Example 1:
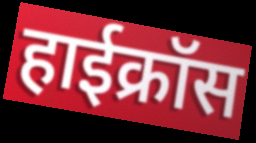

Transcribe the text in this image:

हाईक्रॉस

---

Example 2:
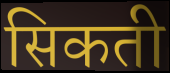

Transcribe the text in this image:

सिकती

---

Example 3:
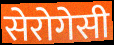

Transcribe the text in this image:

सेरोगेसी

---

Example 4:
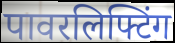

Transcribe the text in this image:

पावरलिफ्टिंग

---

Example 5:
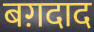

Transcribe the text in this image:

बग़दाद